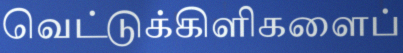
வெட்டுக்கிளிகளைப்